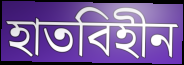
হাতবিহীন